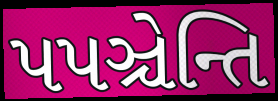
પપઞ્ચેન્તિ